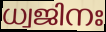
ധ്വജിനഃ